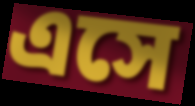
এসে